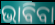
ଭାବିବା